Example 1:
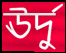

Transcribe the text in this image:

ঊর্দু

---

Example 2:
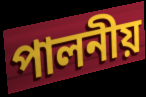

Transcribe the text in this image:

পালনীয়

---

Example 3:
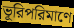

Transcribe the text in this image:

ভূরিপরিমাণে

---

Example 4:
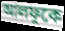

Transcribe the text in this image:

আলফুকে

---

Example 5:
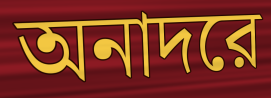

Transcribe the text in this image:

অনাদরে